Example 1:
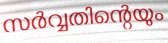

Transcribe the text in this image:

സർവ്വതിന്റെയും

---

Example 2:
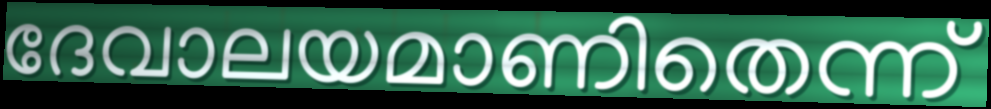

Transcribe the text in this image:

ദേവാലയമാണിതെന്ന്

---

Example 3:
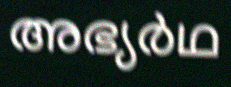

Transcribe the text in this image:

അഭ്യർഥ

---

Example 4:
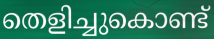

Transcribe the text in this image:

തെളിച്ചുകൊണ്ട്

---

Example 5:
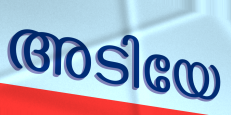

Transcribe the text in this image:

അടിയേ